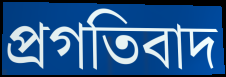
প্রগতিবাদ